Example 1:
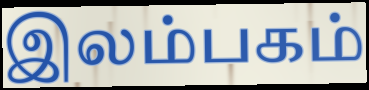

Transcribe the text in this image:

இலம்பகம்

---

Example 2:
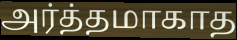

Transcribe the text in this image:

அர்த்தமாகாத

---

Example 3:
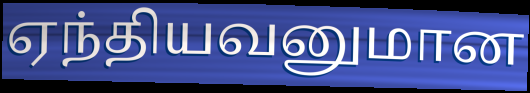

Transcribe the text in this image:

ஏந்தியவனுமான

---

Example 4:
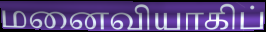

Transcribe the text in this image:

மனைவியாகிப்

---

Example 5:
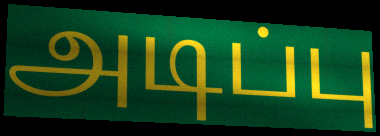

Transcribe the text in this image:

அடிப்பு